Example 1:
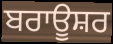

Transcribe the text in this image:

ਬਰਾਊਸ਼ਰ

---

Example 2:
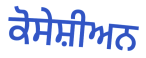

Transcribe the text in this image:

ਕੋਸੇਸ਼ੀਅਨ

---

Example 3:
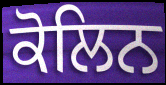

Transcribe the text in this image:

ਕੋਲਿਨ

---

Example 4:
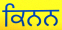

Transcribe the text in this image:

ਕਿਨਨ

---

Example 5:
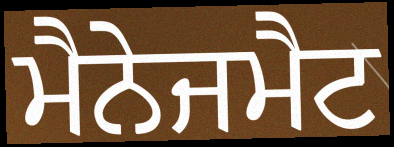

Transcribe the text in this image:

ਮੈਨੇਜਮੈਟ